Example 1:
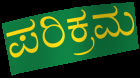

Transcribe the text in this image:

ಪರಿಕ್ರಮ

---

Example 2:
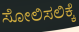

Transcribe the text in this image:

ಸೋಲಿಸಲಿಕ್ಕೆ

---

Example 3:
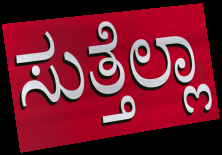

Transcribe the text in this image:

ಸುತ್ತೆಲ್ಲಾ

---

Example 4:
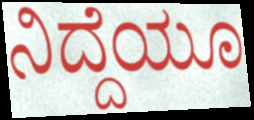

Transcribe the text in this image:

ನಿದ್ದೆಯೂ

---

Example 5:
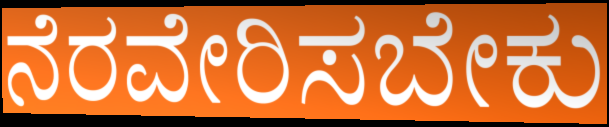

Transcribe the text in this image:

ನೆರವೇರಿಸಬೇಕು